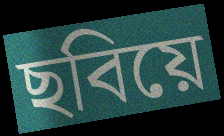
ছবিয়ে